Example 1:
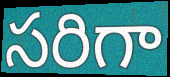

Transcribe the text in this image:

సరిగా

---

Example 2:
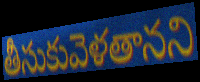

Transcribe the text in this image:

తీసుకువెళతానని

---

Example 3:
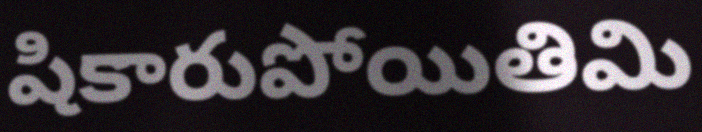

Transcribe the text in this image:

షికారుపోయితిమి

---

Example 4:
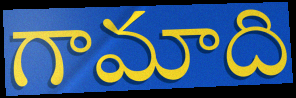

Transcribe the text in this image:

గామాది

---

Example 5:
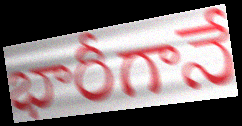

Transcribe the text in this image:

భారీగానే